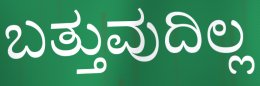
ಬತ್ತುವುದಿಲ್ಲ